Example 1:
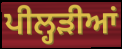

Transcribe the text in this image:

ਪੀਲ੍ਹੜੀਆਂ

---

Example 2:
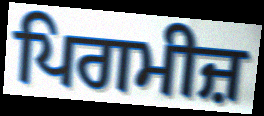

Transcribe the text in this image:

ਪਿਗਮੀਜ਼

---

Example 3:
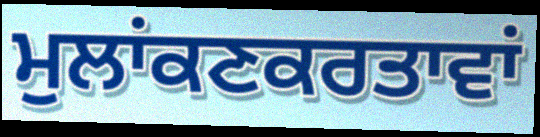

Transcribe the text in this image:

ਮੁਲਾਂਕਣਕਰਤਾਵਾਂ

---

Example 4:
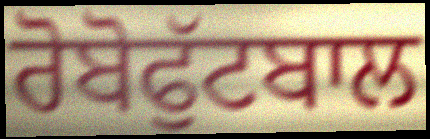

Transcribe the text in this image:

ਰੋਬੋਫੁੱਟਬਾਲ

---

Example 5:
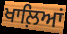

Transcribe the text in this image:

ਖਾਲ਼ਿਆਂ